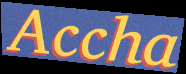
Accha